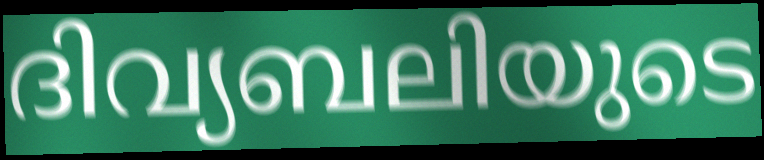
ദിവ്യബലിയുടെ